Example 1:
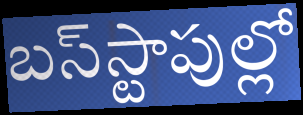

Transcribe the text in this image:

బస్‌స్టాపుల్లో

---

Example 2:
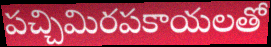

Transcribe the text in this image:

పచ్చిమిరపకాయలతో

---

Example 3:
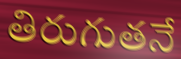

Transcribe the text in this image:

తిరుగుతనే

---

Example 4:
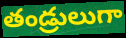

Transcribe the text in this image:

తండ్రులుగా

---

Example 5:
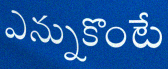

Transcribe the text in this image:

ఎన్నుకొంటే